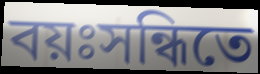
বয়ঃসন্ধিতে